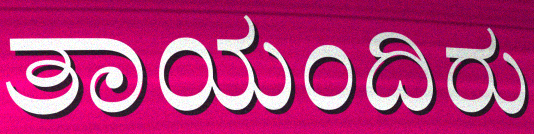
ತಾಯಂದಿರು